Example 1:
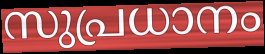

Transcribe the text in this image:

സുപ്രധാനം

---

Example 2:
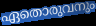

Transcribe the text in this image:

ഏതൊരുവനും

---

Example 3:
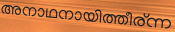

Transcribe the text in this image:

അനാഥനായിത്തീര്ന്ന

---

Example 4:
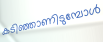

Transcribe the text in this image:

കടിഞ്ഞാണിടുമ്പോൾ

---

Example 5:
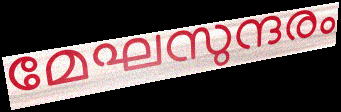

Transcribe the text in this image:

മേഘസുന്ദരം